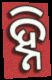
ହ୍ନି